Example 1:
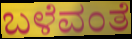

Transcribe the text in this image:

ಬಳೆವಂತೆ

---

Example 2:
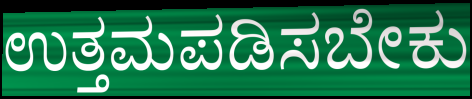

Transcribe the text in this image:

ಉತ್ತಮಪಡಿಸಬೇಕು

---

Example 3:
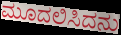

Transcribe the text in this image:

ಮೂದಲಿಸಿದನು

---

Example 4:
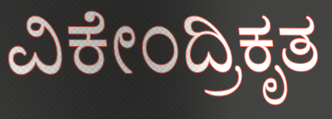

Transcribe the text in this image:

ವಿಕೇಂದ್ರಿಕೃತ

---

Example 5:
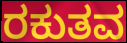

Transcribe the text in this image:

ರಕುತವ